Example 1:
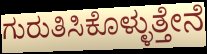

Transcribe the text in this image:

ಗುರುತಿಸಿಕೊಳ್ಳುತ್ತೇನೆ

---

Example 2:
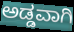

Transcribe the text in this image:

ಅಡ್ಡವಾಗಿ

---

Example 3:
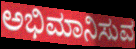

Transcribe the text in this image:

ಅಭಿಮಾನಿಸುವ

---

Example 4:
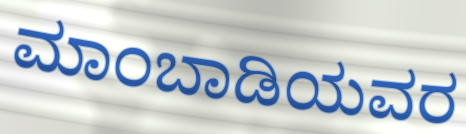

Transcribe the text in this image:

ಮಾಂಬಾಡಿಯವರ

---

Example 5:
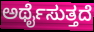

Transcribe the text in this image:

ಅರ್ಥೈಸುತ್ತದೆ